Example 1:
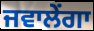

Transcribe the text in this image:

ਜਵਾਲੇਂਗਾ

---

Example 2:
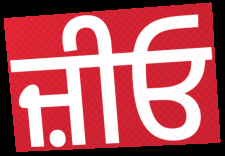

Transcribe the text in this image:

ਜ਼ੀਓ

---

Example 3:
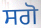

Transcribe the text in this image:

ਸਗੋ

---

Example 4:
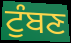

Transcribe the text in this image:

ਟੁੰਬਣ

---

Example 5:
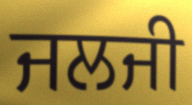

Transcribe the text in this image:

ਜਲਜੀ